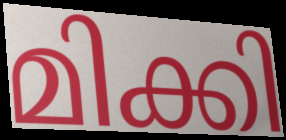
മിക്കി